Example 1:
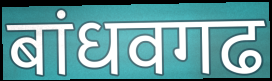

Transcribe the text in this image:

बांधवगढ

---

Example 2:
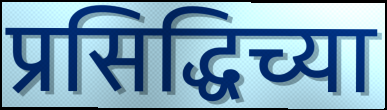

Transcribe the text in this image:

प्रसिद्धिच्या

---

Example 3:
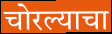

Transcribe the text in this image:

चोरल्याचा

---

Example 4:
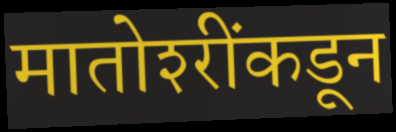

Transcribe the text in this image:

मातोश्रींकडून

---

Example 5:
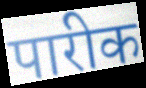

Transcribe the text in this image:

पारीक